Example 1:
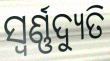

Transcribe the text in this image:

ସ୍ୱର୍ଣ୍ଣଦ୍ୟୁତି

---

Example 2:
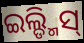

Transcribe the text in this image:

ଇଲ୍ଡ୍ମିସ୍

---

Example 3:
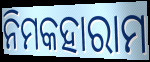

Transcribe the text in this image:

ନିମକହାରାମ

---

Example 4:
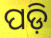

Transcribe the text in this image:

ପଡ଼ି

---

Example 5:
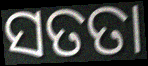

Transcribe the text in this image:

ସତତା